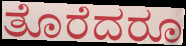
ತೊರೆದರೂ